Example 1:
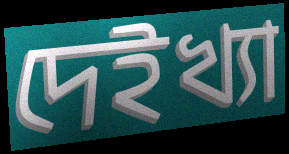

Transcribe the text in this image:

দেইখ্যা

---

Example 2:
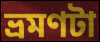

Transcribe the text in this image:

ভ্রমণটা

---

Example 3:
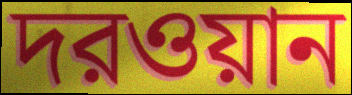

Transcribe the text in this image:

দরওয়ান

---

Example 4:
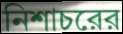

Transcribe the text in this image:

নিশাচরের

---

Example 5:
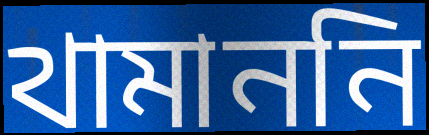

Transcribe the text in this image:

থামাননি